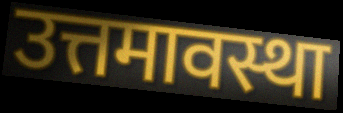
उत्तमावस्था